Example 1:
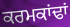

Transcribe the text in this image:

ਕਰਮਕਾਂਢਾਂ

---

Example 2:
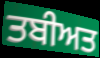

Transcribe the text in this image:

ਤਬੀਅਤ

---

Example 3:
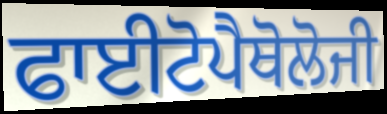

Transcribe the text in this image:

ਫਾਈਟੋਪੈਥੋਲੋਜੀ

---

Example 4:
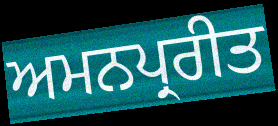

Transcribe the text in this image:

ਅਮਨਪ੍ਰਰੀਤ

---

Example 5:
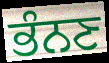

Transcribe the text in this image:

ਭੰਨਣ